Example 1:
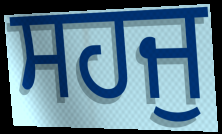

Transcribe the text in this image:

ਸਹਜੁ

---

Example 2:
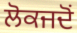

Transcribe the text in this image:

ਲੋਕਜਦੋਂ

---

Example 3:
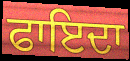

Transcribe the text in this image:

ਫਾਇਦਾ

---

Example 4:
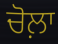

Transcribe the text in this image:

ਚੋਲ਼ਾ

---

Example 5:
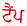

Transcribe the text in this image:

ਟੈਂਪ